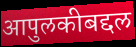
आपुलकीबद्दल